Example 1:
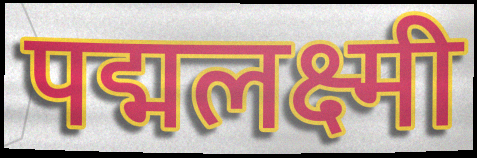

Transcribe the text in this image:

पद्मलक्ष्मी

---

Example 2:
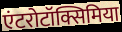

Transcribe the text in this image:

एंटरोटॉक्सिमिया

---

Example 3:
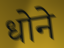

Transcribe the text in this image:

धोने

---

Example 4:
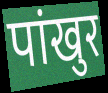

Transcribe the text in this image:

पांखुर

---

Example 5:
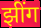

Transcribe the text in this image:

झींग